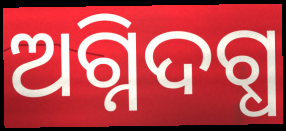
ଅଗ୍ନିଦଗ୍ଧ